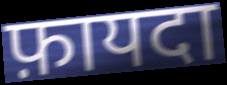
फ़ायदा